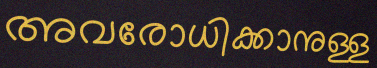
അവരോധിക്കാനുള്ള